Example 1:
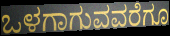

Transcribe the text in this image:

ಒಳಗಾಗುವವರೆಗೂ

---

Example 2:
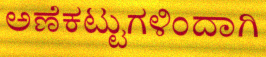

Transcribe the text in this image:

ಅಣೆಕಟ್ಟುಗಳಿಂದಾಗಿ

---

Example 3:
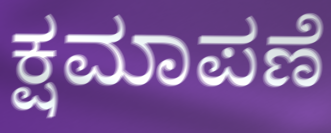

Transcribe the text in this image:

ಕ್ಷಮಾಪಣೆ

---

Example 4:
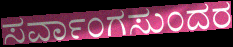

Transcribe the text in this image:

ಸರ್ವಾಂಗಸುಂದರ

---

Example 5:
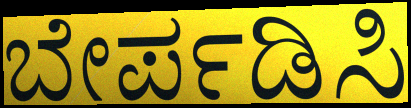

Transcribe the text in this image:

ಬೇರ್ಪಡಿಸಿ